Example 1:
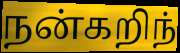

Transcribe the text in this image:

நன்கறிந்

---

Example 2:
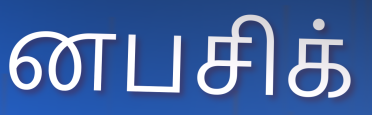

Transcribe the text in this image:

னபசிக்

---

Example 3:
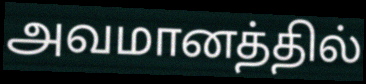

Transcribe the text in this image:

அவமானத்தில்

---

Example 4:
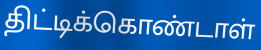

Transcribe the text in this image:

திட்டிக்கொண்டாள்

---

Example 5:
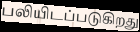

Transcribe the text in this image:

பலியிடப்படுகிறது